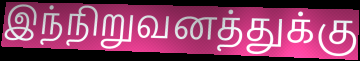
இந்நிறுவனத்துக்கு